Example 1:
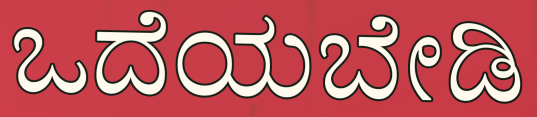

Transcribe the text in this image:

ಒದೆಯಬೇಡಿ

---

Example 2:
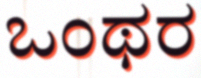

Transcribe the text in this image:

ಒಂಥರ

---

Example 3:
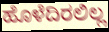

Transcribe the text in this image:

ಹೊಳೆದಿರಲಿಲ್ಲ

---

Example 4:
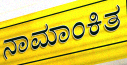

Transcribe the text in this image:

ನಾಮಾಂಕಿತ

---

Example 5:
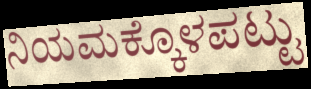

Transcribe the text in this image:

ನಿಯಮಕ್ಕೊಳಪಟ್ಟು